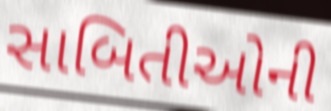
સાબિતીઓની